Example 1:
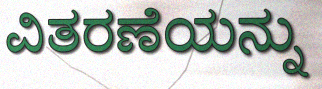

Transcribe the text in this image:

ವಿತರಣೆಯನ್ನು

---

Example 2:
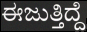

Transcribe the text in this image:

ಈಜುತ್ತಿದ್ದೆ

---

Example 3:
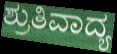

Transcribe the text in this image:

ಶ್ರುತಿವಾದ್ಯ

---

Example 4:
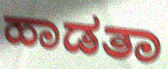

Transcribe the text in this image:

ಹಾಡತಾ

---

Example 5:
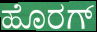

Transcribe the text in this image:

ಹೊರಗ್